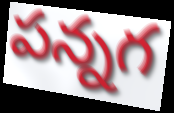
పన్నగ